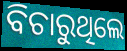
ବିଚାରୁଥିଲେ